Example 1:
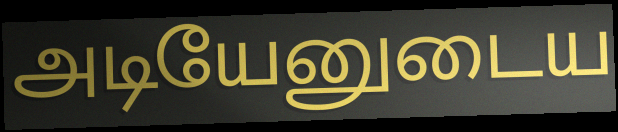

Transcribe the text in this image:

அடியேனுடைய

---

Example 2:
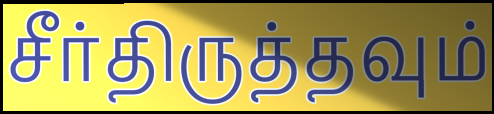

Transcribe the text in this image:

சீர்திருத்தவும்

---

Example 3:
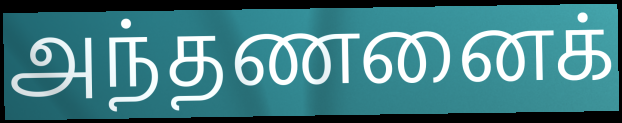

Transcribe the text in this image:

அந்தணனைக்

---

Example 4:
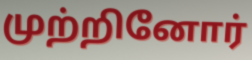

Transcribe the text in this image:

முற்றினோர்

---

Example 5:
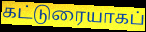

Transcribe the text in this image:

கட்டுரையாகப்